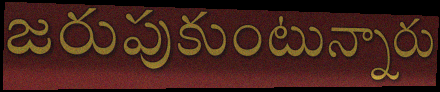
జరుపుకుంటున్నారు